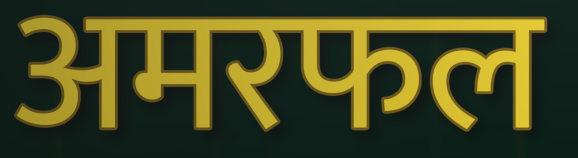
अमरफल